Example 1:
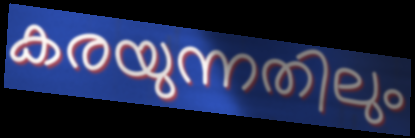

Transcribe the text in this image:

കരയുന്നതിലും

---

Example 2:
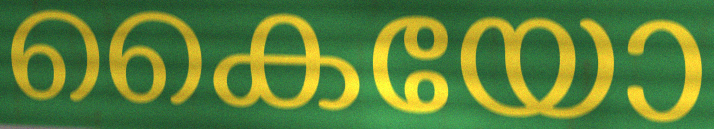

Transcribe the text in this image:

കൈയോ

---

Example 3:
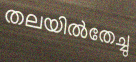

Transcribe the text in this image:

തലയിൽതേച്ചു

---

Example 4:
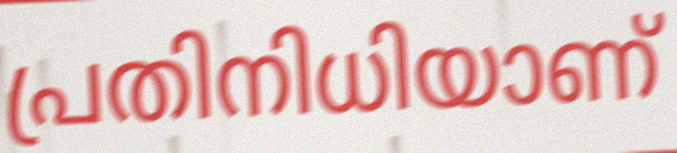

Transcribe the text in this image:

പ്രതിനിധിയാണ്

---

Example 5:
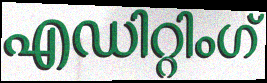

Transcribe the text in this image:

എഡിറ്റിംഗ്